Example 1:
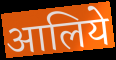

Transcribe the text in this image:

आलिये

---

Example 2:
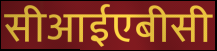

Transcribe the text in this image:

सीआईएबीसी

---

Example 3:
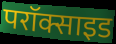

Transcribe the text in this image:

परॉक्साइड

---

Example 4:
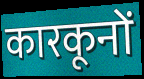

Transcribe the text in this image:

कारकूनों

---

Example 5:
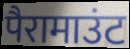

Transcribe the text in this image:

पैरामाउंट